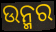
ଉନ୍ମର